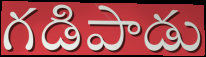
గడిపాడు